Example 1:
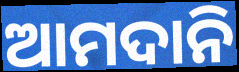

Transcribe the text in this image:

ଆମଦାନି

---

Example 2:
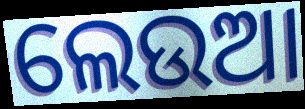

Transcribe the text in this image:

ଲେଉଆ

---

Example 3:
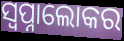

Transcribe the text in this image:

ସ୍ୱପ୍ନାଲୋକର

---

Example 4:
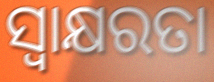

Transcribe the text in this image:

ସ୍ବାକ୍ଷରତା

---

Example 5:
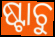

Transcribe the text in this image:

ଷ୍ଟାଚୁ